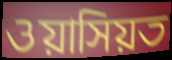
ওয়াসিয়ত